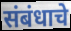
संबंधाचे